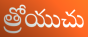
త్రోయుచు